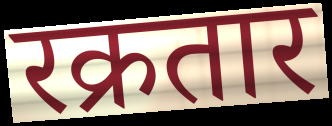
रक्रतार